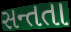
સન્તતા